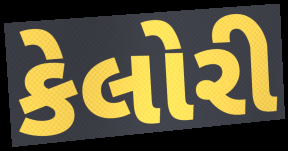
કેલોરી